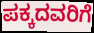
ಪಕ್ಕದವರಿಗೆ